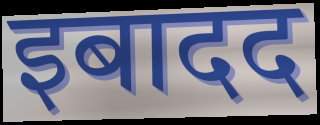
इबादद